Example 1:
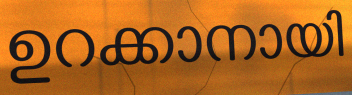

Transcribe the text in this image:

ഉറക്കാനായി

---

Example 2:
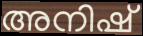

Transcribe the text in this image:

അനിഷ്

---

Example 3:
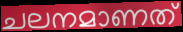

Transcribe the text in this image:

ചലനമാണത്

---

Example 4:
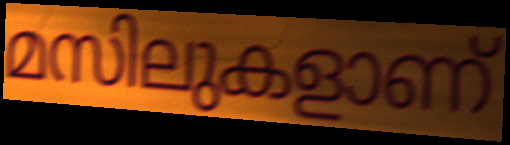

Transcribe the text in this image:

മസിലുകളാണ്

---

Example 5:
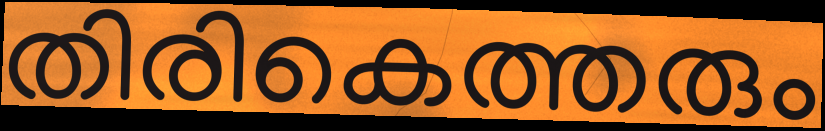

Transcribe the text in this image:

തിരികെത്തരും